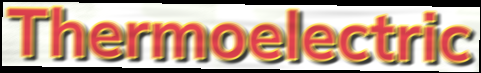
Thermoelectric